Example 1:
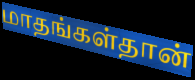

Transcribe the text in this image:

மாதங்கள்தான்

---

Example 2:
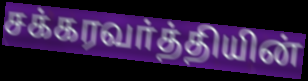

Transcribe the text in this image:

சக்கரவர்த்தியின்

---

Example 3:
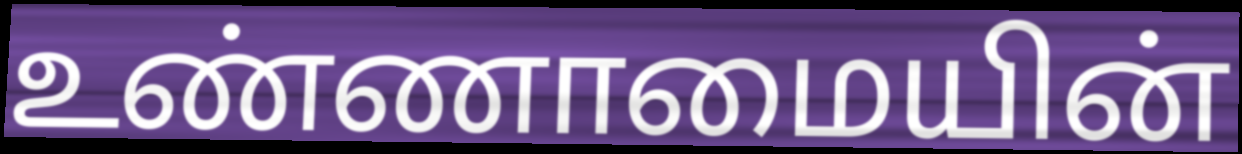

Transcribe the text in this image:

உண்ணாமையின்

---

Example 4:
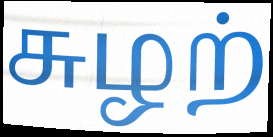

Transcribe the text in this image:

சுழற்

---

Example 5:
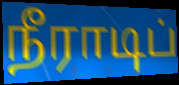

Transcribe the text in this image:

நீராடிப்